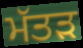
ਮੱਤੜ